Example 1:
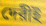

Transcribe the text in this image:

দেরীই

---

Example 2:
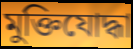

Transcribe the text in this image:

মুক্তিযোদ্ধা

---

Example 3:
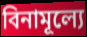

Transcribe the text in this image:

বিনামূল্যে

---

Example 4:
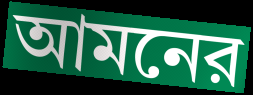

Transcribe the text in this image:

আমনের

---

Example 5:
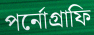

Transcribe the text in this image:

পর্নোগ্রাফি